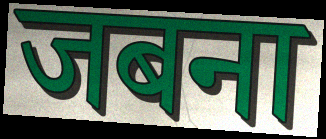
जबना